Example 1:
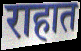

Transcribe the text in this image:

राहात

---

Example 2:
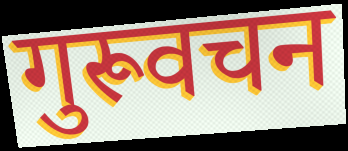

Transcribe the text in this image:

गुरूवचन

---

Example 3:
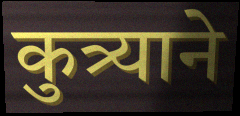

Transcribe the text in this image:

कुत्र्याने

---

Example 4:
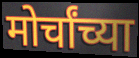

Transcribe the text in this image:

मोर्चांच्या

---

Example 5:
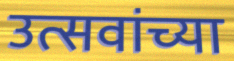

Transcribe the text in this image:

उत्सवांच्या